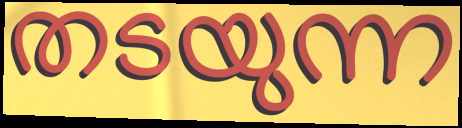
തടയുന്ന